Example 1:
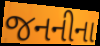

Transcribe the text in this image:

જનનીના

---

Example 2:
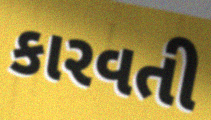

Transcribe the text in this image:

કારવતી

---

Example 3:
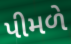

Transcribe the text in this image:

પીમળે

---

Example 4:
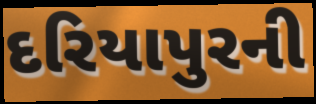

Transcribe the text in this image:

દરિયાપુરની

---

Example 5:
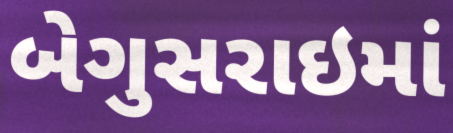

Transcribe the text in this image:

બેગુસરાઇમાં